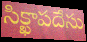
సిక్ఖాపదేసు